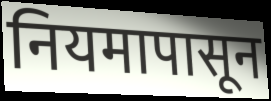
नियमापासून